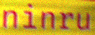
ninru